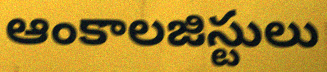
ఆంకాలజిస్టులు